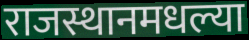
राजस्थानमधल्या